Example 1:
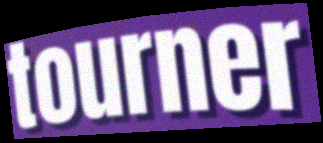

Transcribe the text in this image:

tourner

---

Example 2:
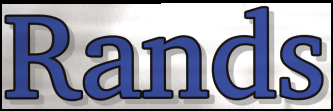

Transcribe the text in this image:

Rands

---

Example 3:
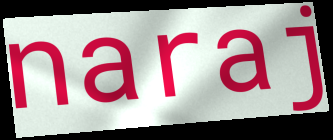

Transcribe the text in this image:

naraj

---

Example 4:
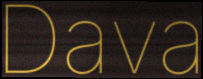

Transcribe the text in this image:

Dava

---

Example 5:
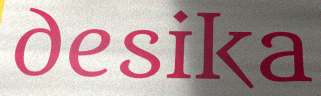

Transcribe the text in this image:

desika